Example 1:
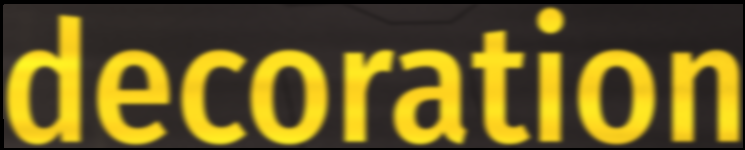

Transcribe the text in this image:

decoration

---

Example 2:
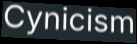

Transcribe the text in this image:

Cynicism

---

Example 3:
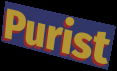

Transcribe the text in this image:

Purist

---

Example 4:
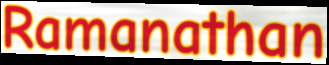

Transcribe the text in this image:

Ramanathan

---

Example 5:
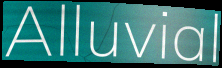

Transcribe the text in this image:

Alluvial